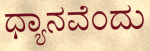
ಧ್ಯಾನವೆಂದು